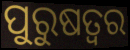
ପୁରୁଷତ୍ଵର